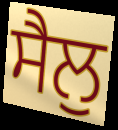
ਸੈਲੁ